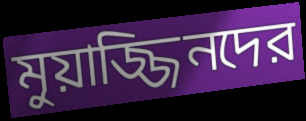
মুয়াজ্জিনদের